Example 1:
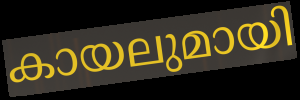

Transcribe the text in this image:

കായലുമായി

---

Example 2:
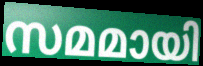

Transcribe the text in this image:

സമമായി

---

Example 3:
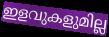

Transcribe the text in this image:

ഇളവുകളുമില്ല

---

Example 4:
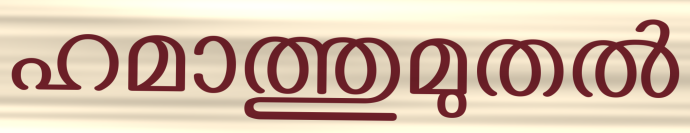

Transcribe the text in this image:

ഹമാത്തുമുതൽ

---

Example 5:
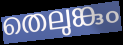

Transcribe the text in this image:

തെലുങ്കും